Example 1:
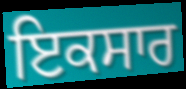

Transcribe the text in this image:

ਇਕਸਾਰ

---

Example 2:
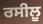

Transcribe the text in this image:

ਰਸੀਲੂ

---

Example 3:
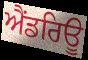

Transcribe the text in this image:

ਐਂਡਰਿਊ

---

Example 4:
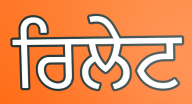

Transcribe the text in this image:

ਰਿਲੇਟ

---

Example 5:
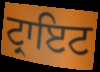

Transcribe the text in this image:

ਟ੍ਰਾਇਟ